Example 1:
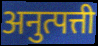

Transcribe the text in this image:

अनुत्पत्ती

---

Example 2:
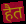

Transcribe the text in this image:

हैत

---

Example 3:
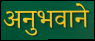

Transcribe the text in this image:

अनुभवाने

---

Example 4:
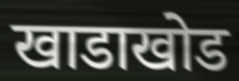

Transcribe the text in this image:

खाडाखोड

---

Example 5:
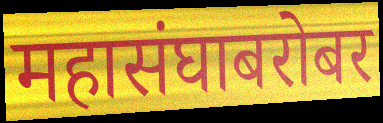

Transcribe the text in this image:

महासंघाबरोबर